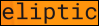
eliptic